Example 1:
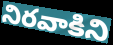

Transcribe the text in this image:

నిరవాకిని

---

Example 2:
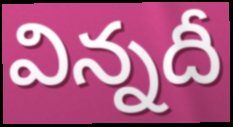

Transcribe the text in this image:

విన్నదీ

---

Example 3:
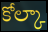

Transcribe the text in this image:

కోల్కా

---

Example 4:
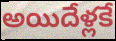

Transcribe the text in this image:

అయిదేళ్లకే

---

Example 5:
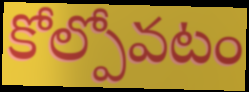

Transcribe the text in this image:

కోల్పోవటం